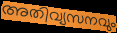
അതിവ്യസനവും